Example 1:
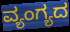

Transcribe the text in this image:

ವ್ಯಂಗ್ಯದ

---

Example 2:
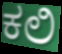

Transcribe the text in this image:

ಕಲಿ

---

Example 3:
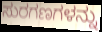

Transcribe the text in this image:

ಸುರಗಣಗಳನ್ನು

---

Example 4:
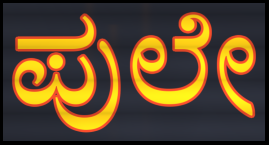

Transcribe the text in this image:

ಪುಲೇ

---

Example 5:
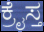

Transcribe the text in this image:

ಕ್ರೈಸ್ತ